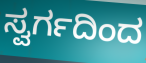
ಸ್ವರ್ಗದಿಂದ